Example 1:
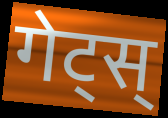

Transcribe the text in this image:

गेट्स्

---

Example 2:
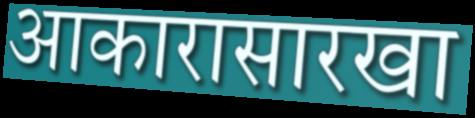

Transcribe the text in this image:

आकारासारखा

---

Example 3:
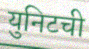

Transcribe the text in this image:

युनिटची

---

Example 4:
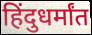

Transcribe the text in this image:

हिंदुधर्मांत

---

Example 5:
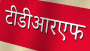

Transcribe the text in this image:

टीडीआरएफ